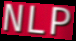
NLP